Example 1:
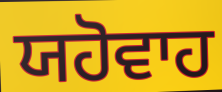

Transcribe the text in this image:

ਯਹੋਵਾਹ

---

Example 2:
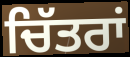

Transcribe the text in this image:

ਚਿੱਤਰਾਂ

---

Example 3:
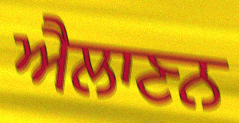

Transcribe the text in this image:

ਐਲਾਣਨ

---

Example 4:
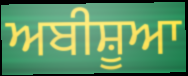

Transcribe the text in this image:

ਅਬੀਸ਼ੂਆ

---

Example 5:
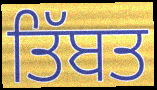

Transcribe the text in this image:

ਤਿੱਬਤ